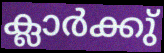
ക്ലാർക്കു്